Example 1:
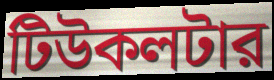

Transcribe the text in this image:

টিউকলটার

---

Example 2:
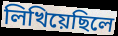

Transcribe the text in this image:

লিখিয়েছিলে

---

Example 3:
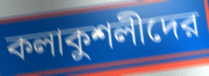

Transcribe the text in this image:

কলাকুশলীদের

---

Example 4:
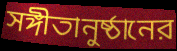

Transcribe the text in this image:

সঙ্গীতানুষ্ঠানের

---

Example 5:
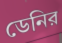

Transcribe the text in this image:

ডেনির